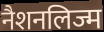
नैशनलिज्म